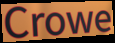
Crowe